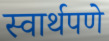
स्वार्थपणे